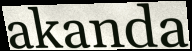
akanda